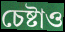
চেষ্টাও